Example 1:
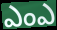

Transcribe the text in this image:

ఎంఎ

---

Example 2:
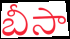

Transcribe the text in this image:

బీసా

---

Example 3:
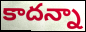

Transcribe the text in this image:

కాదన్నా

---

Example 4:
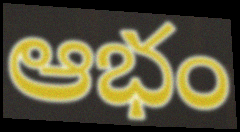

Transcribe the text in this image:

ఆభం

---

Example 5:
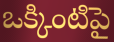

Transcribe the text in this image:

ఒక్కింటిపై